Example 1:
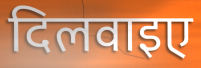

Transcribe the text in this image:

दिलवाइए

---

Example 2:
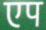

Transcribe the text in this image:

एप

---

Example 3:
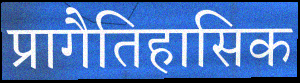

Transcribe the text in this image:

प्रागैतिहासिक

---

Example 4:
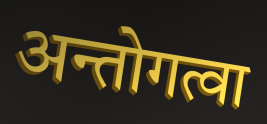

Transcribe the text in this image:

अन्तोगत्वा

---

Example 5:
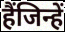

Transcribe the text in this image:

हैंजिन्हें